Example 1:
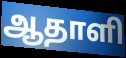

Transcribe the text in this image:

ஆதாளி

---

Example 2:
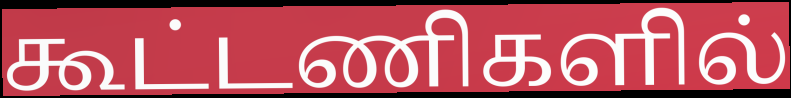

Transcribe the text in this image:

கூட்டணிகளில்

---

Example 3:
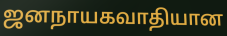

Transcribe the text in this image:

ஜனநாயகவாதியான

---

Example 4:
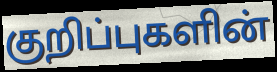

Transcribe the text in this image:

குறிப்புகளின்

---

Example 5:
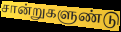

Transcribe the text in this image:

சான்றுகளுண்டு